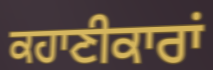
ਕਹਾਣੀਕਾਰਾਂ